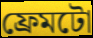
ফ্ৰেমটো